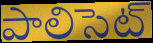
పాలిసెట్